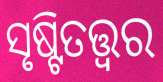
ସୃଷ୍ଟିତତ୍ତ୍ୱର